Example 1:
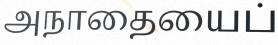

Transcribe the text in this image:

அநாதையைப்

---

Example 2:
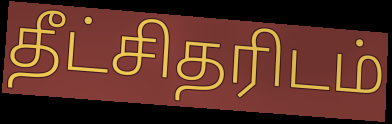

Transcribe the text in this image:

தீட்சிதரிடம்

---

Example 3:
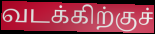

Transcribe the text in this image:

வடக்கிற்குச்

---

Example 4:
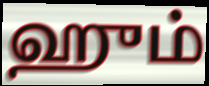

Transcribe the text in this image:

ஹும்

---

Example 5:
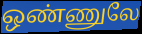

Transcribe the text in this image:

ஒண்ணுலே